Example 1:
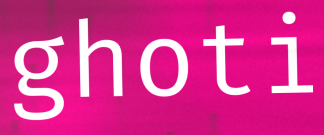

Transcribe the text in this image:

ghoti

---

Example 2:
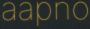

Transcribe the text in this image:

aapno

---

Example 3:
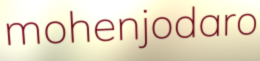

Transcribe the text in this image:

mohenjodaro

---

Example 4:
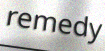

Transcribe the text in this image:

remedy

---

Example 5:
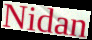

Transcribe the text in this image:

Nidan